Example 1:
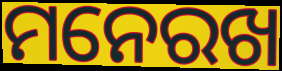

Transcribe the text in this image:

ମନେରଖ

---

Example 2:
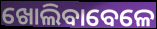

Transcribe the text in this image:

ଖୋଲିବାବେଳେ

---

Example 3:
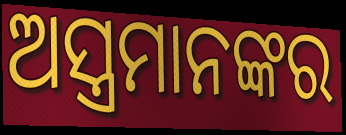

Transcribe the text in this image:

ଅସ୍ତ୍ରମାନଙ୍କର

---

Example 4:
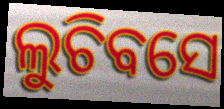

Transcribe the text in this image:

ଲୁଚିବସେ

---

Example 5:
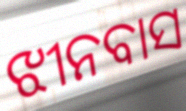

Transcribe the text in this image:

ଝୀନବାସ